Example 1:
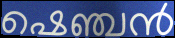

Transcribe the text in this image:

ഷെഞ്ചൻ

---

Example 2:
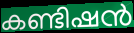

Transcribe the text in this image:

കണ്ടിഷൻ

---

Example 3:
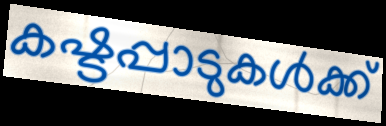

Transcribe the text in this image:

കഷ്ടപ്പാടുകൾക്ക്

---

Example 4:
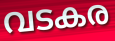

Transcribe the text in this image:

വടകര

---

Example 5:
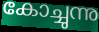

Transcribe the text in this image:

കോച്ചുന്നു